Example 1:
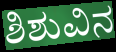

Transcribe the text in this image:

ಶಿಶುವಿನ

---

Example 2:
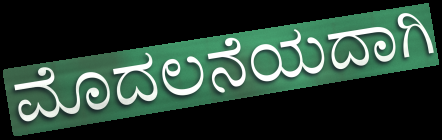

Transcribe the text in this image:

ಮೊದಲನೆಯದಾಗಿ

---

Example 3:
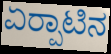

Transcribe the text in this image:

ಏರ‍್ಪಾಟಿನ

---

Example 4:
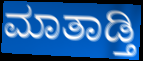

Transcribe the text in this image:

ಮಾತಾಡ್ತಿ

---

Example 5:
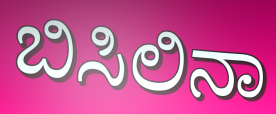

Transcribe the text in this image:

ಬಿಸಿಲಿನಾ